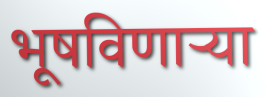
भूषविणाऱ्या